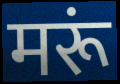
मरूं